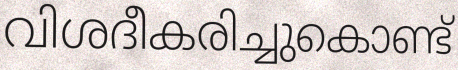
വിശദീകരിച്ചുകൊണ്ട്